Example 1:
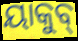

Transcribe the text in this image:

ୟାକୁବ୍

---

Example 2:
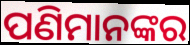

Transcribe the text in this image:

ପଣିମାନଙ୍କର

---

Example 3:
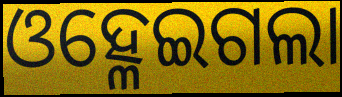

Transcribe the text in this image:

ଓହ୍ଳେଇଗଲା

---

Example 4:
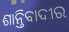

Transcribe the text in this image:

ଶାନ୍ତିବାଦୀର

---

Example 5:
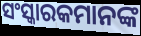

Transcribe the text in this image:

ସଂସ୍କାରକମାନଙ୍କ